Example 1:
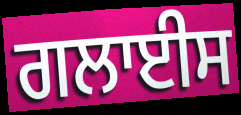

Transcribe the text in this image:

ਗਲਾਈਸ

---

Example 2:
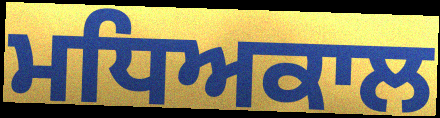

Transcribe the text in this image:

ਮਧਿਅਕਾਲ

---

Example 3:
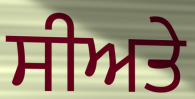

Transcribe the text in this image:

ਸੀਅਤੇ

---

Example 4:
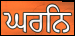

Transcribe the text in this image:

ਘਰਨਿ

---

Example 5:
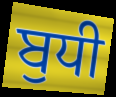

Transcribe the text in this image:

ਬੁਧੀ